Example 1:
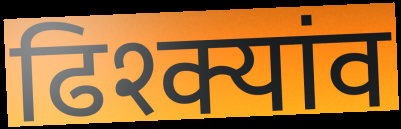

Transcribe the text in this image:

ढिश्क्यांव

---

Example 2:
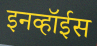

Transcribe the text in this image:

इनव्हॉईस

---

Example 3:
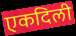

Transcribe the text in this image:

एकदिली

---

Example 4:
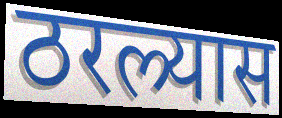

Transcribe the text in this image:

ठरल्यास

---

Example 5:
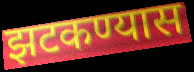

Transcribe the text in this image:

झटकण्यास